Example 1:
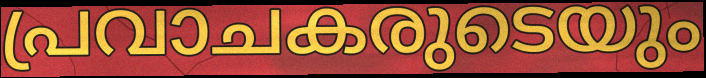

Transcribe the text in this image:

പ്രവാചകരുടെയും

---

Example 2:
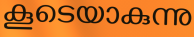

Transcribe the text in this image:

കൂടെയാകുന്നു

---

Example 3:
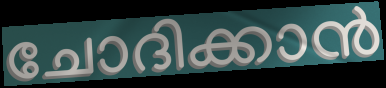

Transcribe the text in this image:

ചോദിക്കാൻ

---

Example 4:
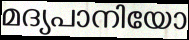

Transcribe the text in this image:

മദ്യപാനിയോ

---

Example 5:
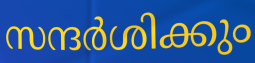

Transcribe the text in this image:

സന്ദർശിക്കും